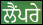
ਲੈਂਪਰੇ